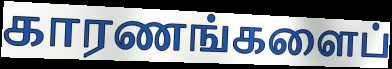
காரணங்களைப்